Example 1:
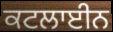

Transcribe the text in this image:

ਕਟਲਾਈਨ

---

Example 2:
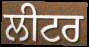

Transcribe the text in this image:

ਲੀਟਰ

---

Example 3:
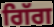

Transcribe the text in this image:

ਗਿੱਗ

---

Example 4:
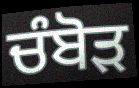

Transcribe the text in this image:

ਚੰਬੋੜ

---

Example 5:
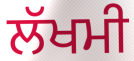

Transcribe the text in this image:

ਲੱਖਮੀ